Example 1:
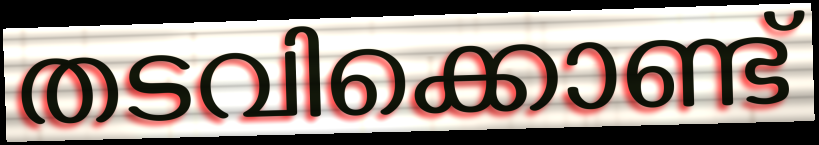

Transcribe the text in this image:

തടവിക്കൊണ്ട്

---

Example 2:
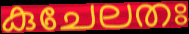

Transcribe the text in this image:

കുചേലതഃ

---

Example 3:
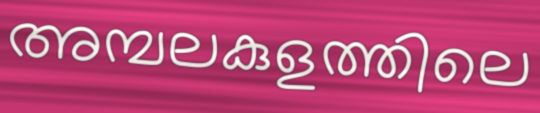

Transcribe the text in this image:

അമ്പലകുളത്തിലെ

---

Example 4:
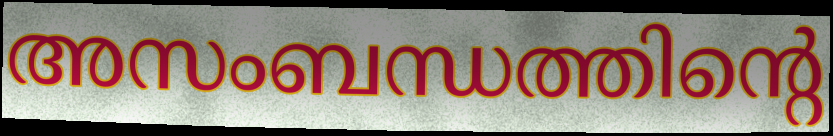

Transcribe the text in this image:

അസംബന്ധത്തിന്റെ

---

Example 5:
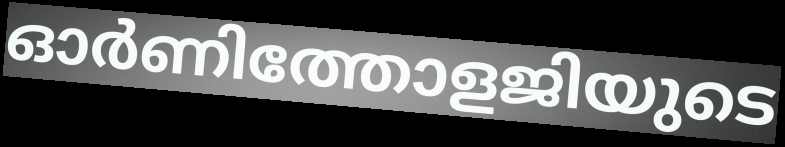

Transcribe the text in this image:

ഓർണിത്തോളജിയുടെ